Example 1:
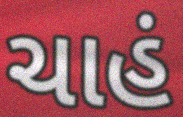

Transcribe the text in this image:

ચાહં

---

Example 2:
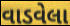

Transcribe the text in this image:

વાડવેલા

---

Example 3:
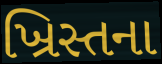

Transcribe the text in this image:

ખ્રિસ્તના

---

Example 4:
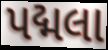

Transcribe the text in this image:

પદ્મલા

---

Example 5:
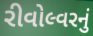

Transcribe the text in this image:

રીવોલ્વરનું